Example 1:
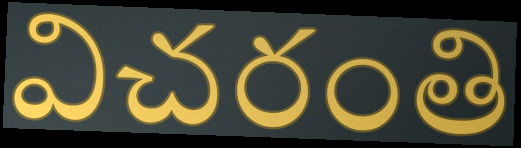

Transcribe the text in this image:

విచరంతి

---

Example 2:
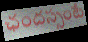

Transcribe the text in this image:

ఛందస్సంటే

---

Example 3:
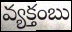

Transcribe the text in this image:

వ్యక్తంబు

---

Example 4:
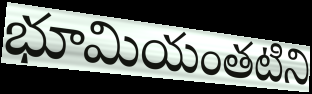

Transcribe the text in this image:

భూమియంతటిని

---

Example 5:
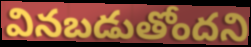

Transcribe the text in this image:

వినబడుతోందని